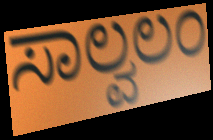
ಸಾಲ್ವಲಂ